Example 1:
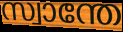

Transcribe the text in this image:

സ്വാന്തേ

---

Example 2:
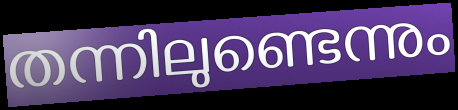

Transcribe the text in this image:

തന്നിലുണ്ടെന്നും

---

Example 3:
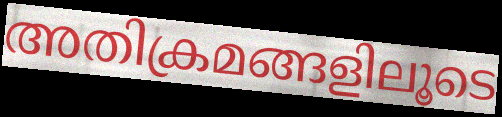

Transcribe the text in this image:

അതിക്രമങ്ങളിലൂടെ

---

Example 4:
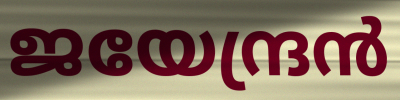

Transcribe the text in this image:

ജയേന്ദ്രൻ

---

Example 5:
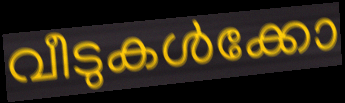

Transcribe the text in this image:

വീടുകൾക്കോ